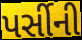
પર્સીની